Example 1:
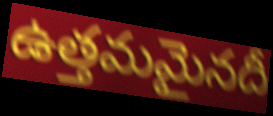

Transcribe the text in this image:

ఉత్తమమైనదీ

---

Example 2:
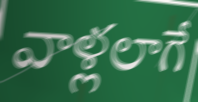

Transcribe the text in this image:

వాళ్లలాగే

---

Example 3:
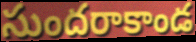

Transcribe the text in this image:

సుందరాకాండ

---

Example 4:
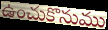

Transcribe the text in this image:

ఉంచుకొనుము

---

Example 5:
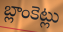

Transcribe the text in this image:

బ్లాంకెట్లు